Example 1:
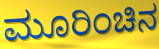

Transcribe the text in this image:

ಮೂರಿಂಚಿನ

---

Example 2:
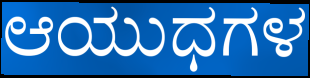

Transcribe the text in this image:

ಆಯುಧಗಳ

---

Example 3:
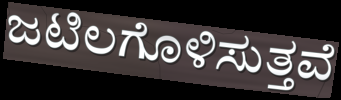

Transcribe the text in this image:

ಜಟಿಲಗೊಳಿಸುತ್ತವೆ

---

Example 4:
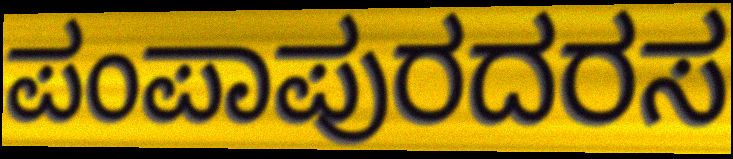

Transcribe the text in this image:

ಪಂಪಾಪುರದರಸ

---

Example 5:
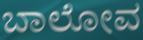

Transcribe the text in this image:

ಬಾಲೋವ